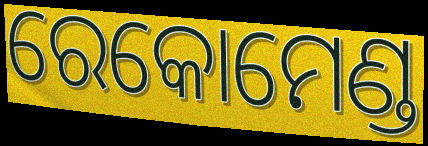
ରେକୋମେଣ୍ଡ